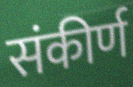
संकीर्ण